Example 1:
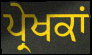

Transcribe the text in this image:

ਪ੍ਰੇਖਕਾਂ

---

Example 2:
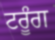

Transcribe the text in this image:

ਟਰੂੰਗ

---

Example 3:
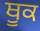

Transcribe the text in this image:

ਥੂਕ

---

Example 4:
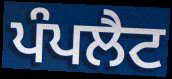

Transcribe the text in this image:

ਪੰਪਲੈਟ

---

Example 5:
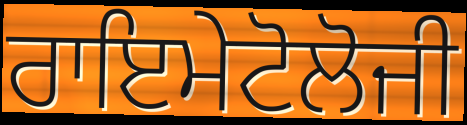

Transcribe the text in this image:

ਰਾਇਮੇਟੋਲੋਜੀ